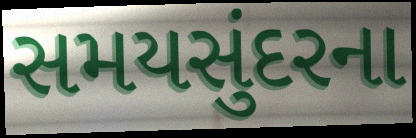
સમયસુંદરના